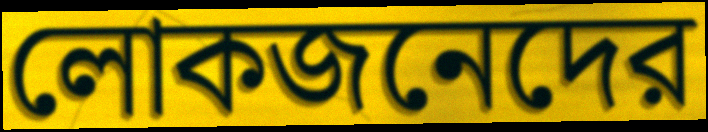
লোকজনেদের